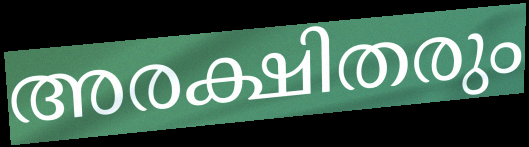
അരക്ഷിതരും